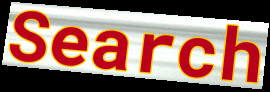
Search